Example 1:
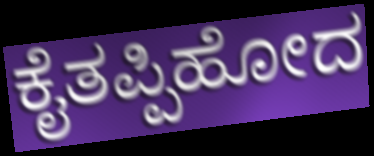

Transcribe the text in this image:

ಕೈತಪ್ಪಿಹೋದ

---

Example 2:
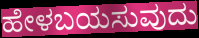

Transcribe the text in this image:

ಹೇಳಬಯಸುವುದು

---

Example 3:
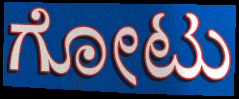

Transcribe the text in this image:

ಗೋಟು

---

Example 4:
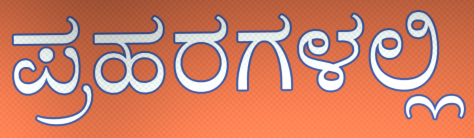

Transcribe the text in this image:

ಪ್ರಹರಗಳಲ್ಲಿ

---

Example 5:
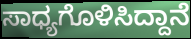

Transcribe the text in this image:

ಸಾಧ್ಯಗೊಳಿಸಿದ್ದಾನೆ